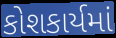
કોશકાર્યમાં